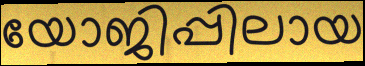
യോജിപ്പിലായ